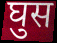
घुस